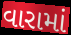
વારામાં